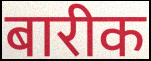
बारीक